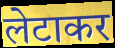
लेटाकर